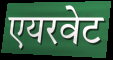
एयरवेट